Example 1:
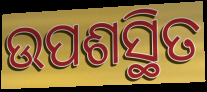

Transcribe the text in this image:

ଉପଶସ୍ଥିତ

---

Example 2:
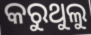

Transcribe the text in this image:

କରୁଥୁଲୁ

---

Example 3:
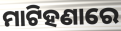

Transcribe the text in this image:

ମାଟିହଣାରେ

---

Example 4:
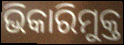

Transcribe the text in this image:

ଭିକାରିମୁକ୍ତ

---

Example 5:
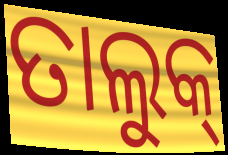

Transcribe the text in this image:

ତାଲୁକ୍